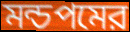
মন্ডপমের